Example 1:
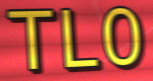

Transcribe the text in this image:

TLO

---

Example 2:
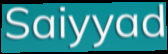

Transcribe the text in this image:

Saiyyad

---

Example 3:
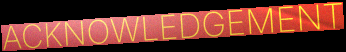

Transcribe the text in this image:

ACKNOWLEDGEMENT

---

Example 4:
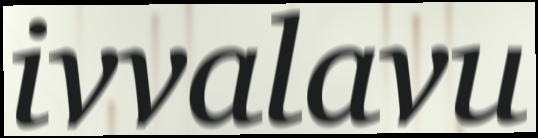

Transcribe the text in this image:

ivvalavu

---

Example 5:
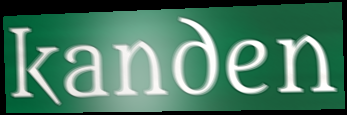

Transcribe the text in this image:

kanden